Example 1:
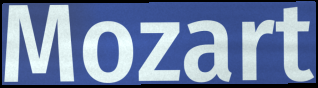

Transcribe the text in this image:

Mozart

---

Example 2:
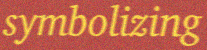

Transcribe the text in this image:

symbolizing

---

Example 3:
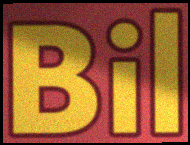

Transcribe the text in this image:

Bil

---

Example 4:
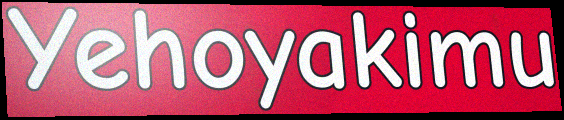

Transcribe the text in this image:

Yehoyakimu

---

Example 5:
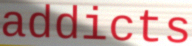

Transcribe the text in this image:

addicts